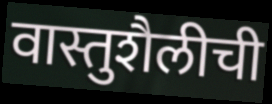
वास्तुशैलीची